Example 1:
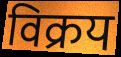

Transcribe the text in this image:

विक्रय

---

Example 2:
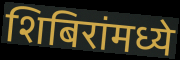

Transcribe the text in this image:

शिबिरांमध्ये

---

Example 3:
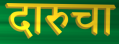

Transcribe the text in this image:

दारुचा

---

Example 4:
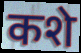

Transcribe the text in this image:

कशे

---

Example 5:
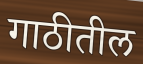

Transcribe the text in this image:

गाठीतील